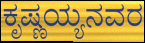
ಕೃಷ್ಣಯ್ಯನವರ